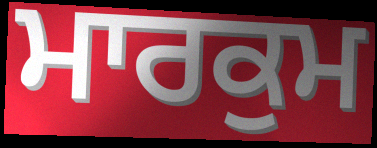
ਮਾਰਕੁਮ